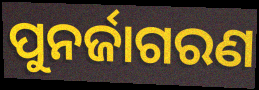
ପୁନର୍ଜାଗରଣ